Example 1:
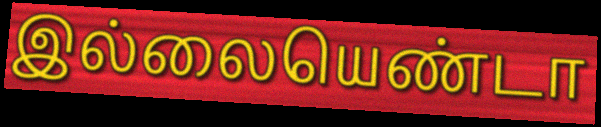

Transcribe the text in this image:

இல்லையெண்டா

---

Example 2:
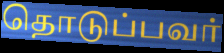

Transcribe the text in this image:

தொடுப்பவர்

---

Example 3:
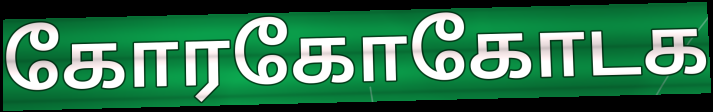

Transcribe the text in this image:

கோரகோகோடக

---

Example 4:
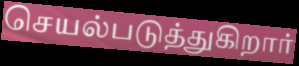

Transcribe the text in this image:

செயல்படுத்துகிறார்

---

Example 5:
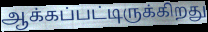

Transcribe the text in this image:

ஆக்கப்பட்டிருக்கிறது